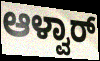
ಆಳ್ವಾರ್